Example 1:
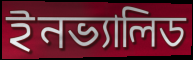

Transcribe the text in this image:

ইনভ্যালিড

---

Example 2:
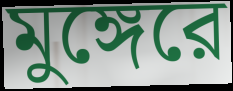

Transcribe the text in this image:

মুঙ্গেরে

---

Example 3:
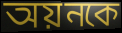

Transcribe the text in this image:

অয়নকে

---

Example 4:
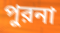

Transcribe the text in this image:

পুরনা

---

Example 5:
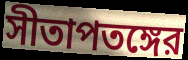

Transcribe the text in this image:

সীতাপতঙ্গের